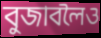
বুজাবলৈও